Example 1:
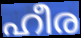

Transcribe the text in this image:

ഹീര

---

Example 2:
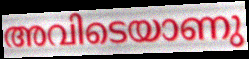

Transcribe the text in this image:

അവിടെയാണു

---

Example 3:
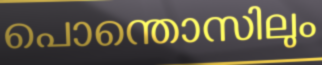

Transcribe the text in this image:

പൊന്തൊസിലും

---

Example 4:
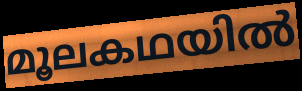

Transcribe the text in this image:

മൂലകഥയിൽ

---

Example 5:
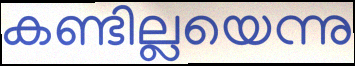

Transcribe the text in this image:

കണ്ടില്ലയെന്നു